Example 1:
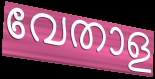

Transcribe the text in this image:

വേതാള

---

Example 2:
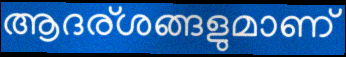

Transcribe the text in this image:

ആദര്ശങ്ങളുമാണ്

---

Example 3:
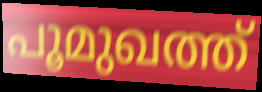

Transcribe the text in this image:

പൂമുഖത്ത്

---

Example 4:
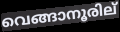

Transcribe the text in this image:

വെങ്ങാനൂരില്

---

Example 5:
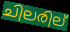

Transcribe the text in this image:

ചിലരില്